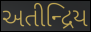
અતીન્દ્રિય